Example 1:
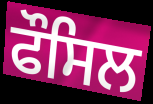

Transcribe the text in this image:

ਫੌਸਿਲ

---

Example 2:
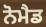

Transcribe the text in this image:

ਨੋਮੈਡ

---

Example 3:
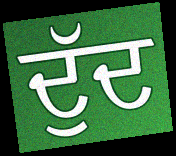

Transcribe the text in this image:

ਦੁੱਦ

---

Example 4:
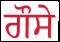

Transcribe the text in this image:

ਗੌਸੇ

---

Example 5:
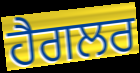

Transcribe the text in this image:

ਹੈਗਲਰ